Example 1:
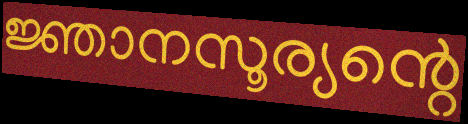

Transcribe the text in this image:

ജ്ഞാനസൂര്യന്റെ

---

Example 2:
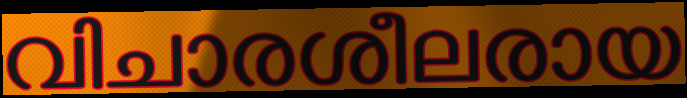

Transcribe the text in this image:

വിചാരശീലരായ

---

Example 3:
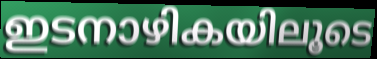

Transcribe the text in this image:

ഇടനാഴികയിലൂടെ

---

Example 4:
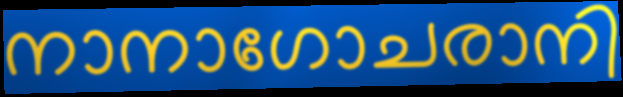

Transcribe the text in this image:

നാനാഗോചരാനി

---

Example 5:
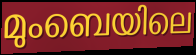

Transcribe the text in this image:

മുംബെയിലെ